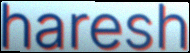
haresh